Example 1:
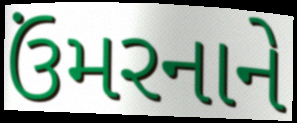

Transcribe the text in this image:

ઉંમરનાને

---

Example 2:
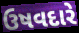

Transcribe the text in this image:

ઉષવદારે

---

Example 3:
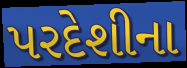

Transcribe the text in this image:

પરદેશીના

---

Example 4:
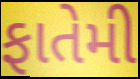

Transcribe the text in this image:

ફાતેમી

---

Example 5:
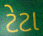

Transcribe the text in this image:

ટેટા